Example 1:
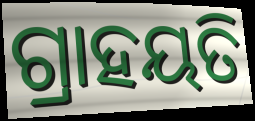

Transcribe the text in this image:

ଗ୍ରାହୟତି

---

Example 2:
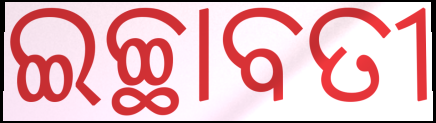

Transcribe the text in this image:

ଇଚ୍ଛାବତୀ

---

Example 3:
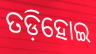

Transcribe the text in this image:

ତଡ଼ିହୋଇ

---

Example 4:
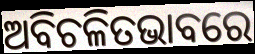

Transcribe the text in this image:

ଅବିଚଳିତଭାବରେ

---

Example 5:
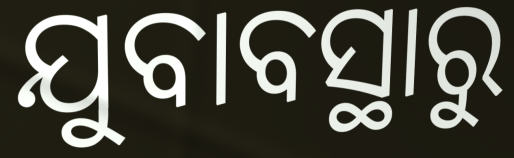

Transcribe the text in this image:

ଯୁବାବସ୍ଥାରୁ